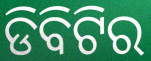
ଡିବିଟିର